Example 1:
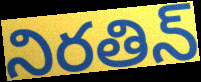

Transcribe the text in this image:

నిరతిన్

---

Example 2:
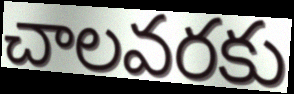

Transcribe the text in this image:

చాలవరకు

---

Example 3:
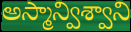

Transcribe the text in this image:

అస్మాన్విశ్వాని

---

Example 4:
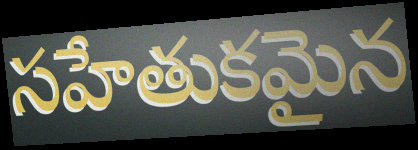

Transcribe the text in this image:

సహేతుకమైన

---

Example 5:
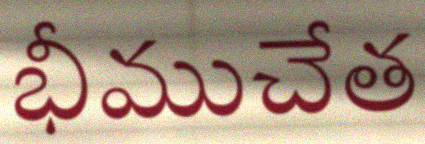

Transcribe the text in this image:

భీముచేత